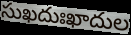
సుఖదుఃఖాదుల